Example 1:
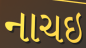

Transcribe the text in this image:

નાચઇ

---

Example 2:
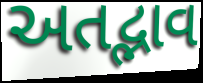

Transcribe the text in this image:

અતદ્ભાવ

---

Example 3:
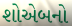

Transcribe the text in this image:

શોએબનો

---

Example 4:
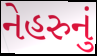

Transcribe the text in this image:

નેહરુનું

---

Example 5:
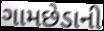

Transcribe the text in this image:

ગામછેડાની